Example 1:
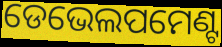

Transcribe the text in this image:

ଡେଭେଲପମେଣ୍ଟ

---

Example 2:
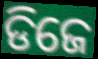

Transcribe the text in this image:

ଡିଜେ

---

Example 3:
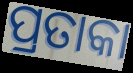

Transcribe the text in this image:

ପ୍ରତାକା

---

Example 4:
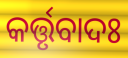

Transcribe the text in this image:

କର୍ତ୍ତୃବାଦଃ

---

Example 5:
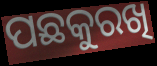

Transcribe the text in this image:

ପଛକୁରଖି